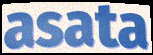
asata